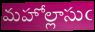
మహోల్లాసుఁ